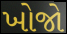
ખોજો